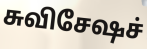
சுவிசேஷச்